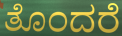
ತೊಂದರೆ